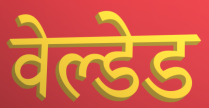
वेल्डेड